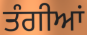
ਤੰਗੀਆਂ